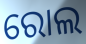
ରୋଲ